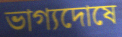
ভাগ্যদোষে